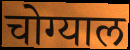
चोग्याल